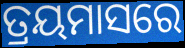
ତ୍ରୟମାସରେ